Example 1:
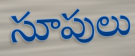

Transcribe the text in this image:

సూపులు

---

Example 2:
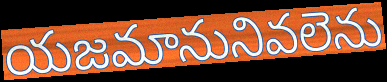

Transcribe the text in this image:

యజమానునివలెను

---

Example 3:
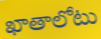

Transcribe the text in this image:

ఖాతాలోటు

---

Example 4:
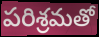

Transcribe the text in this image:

పరిశ్రమతో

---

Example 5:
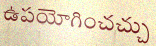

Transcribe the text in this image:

ఉపయోగించచ్చు